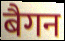
बैगन